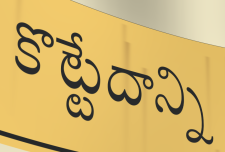
కొట్టేదాన్ని